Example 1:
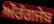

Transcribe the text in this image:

ਔਰੰਗਜੇਬ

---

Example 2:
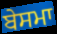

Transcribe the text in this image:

ਬੇਸਮਾ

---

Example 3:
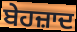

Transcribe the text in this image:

ਬੇਹਜ਼ਾਦ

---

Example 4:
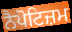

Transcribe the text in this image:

ਨੈਪੋਟਿਜ਼ਮ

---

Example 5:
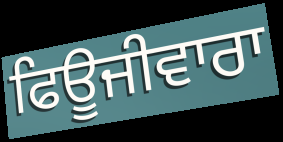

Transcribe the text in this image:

ਫਿਊਜੀਵਾਰਾ